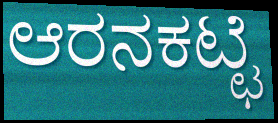
ಆರನಕಟ್ಟೆ